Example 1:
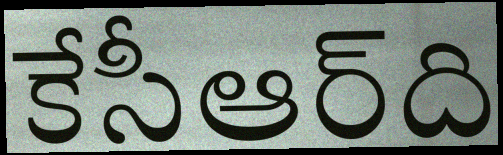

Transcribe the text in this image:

కేసీఆర్‌ది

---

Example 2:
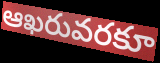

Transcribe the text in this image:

ఆఖరువరకూ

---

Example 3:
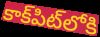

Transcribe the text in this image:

కాక్‌పిట్‌లోకి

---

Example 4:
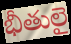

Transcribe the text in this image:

భీతులై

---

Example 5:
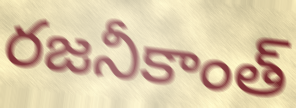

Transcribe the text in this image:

రజనీకాంత్